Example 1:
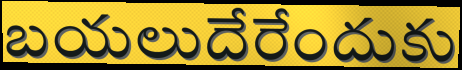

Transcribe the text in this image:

బయలుదేరేందుకు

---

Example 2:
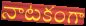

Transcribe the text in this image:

నాటకంగా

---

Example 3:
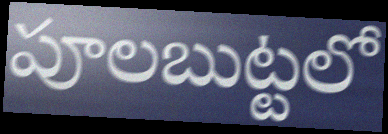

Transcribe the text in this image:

పూలబుట్టలో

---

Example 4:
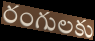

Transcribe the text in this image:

రంగులకు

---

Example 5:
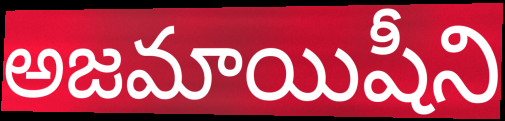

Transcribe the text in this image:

అజమాయిషీని